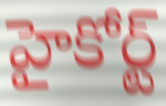
హైకోర్ట్